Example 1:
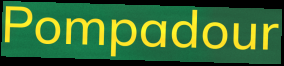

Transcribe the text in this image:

Pompadour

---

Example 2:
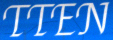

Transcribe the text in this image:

TTEN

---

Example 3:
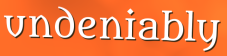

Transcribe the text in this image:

undeniably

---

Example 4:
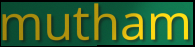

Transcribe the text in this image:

mutham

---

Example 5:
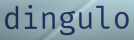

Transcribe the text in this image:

dingulo